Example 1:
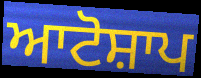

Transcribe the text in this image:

ਆਟੋਸ਼ਾਪ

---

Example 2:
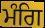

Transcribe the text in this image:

ਮੰਗਿ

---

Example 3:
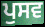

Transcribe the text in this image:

ਪੁਸਵ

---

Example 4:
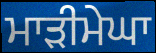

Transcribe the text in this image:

ਮਾੜੀਮੇਘਾ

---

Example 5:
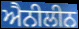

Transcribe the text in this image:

ਐਨੀਲੀਨ